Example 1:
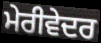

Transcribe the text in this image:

ਮੇਰੀਵੇਦਰ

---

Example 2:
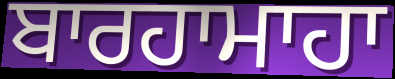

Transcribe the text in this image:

ਬਾਰਹਾਮਾਹਾ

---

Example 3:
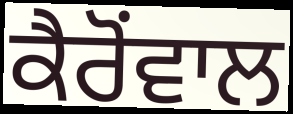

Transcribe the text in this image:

ਕੈਰੋਂਵਾਲ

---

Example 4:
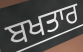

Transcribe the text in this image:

ਬਖਤਾਰ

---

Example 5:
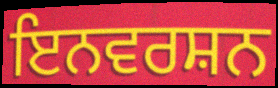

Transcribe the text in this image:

ਇਨਵਰਸ਼ਨ